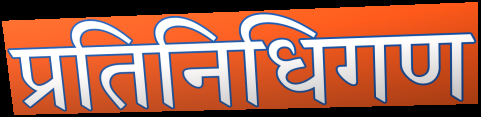
प्रतिनिधिगण